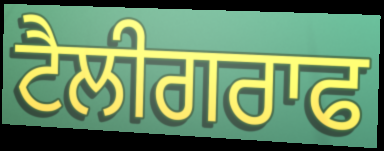
ਟੈਲੀਗਰਾਫ